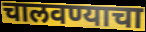
चालवण्याचा